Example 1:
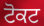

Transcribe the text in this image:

ਟੋਕਟ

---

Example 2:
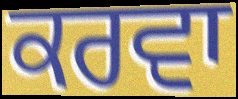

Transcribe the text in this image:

ਕਰਵਾ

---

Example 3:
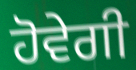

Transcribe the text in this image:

ਹੋਵੇਗੀ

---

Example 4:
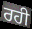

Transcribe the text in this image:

ਰਹੀ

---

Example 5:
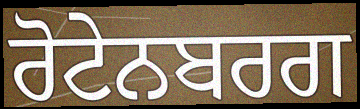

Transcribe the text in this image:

ਰੋਟੇਨਬਰਗ